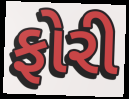
ફોરી